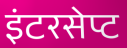
इंटरसेप्‍ट